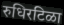
रुधिरटिळा